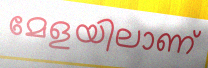
മേളയിലാണ്